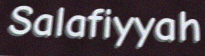
Salafiyyah